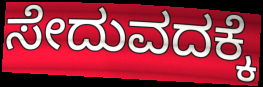
ಸೇದುವದಕ್ಕೆ